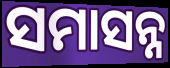
ସମାସନ୍ନ